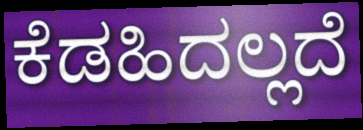
ಕೆಡಹಿದಲ್ಲದೆ